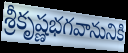
శ్రీకృష్ణభగవానునికి